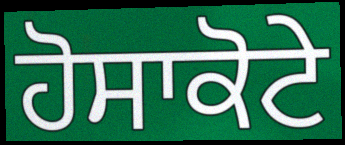
ਹੋਸਾਕੋਟੇ